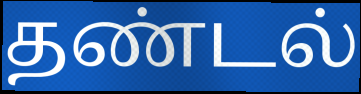
தண்டல்